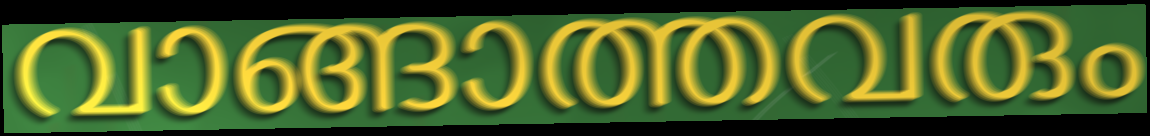
വാങ്ങാത്തവരും